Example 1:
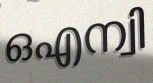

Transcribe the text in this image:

ഒഎന്വി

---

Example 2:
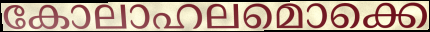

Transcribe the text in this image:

കോലാഹലമൊക്കെ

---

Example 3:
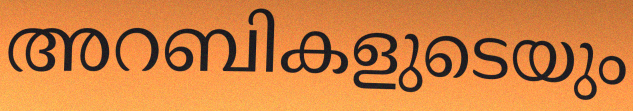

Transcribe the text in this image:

അറബികളുടെയും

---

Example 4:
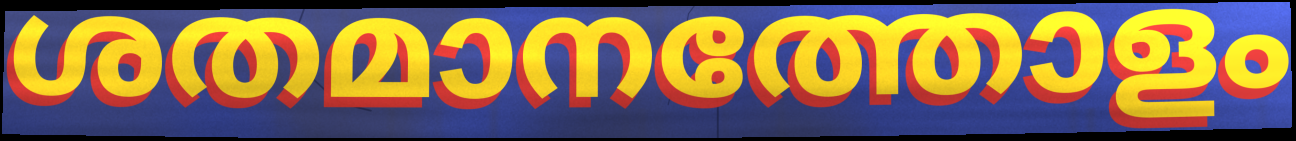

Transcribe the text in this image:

ശതമാനത്തോളം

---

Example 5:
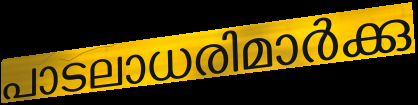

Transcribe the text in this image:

പാടലാധരിമാർക്കു